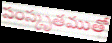
సంస్కృతముతో